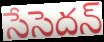
సేసెదన్